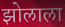
झोलाला